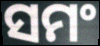
ସମଂ